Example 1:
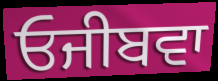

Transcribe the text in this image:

ਓਜੀਬਵਾ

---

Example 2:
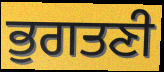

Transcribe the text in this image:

ਭੁਗਤਣੀ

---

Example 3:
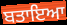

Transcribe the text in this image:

ਬਤਾਇਆ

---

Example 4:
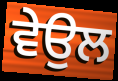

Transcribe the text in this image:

ਵੇਉਲ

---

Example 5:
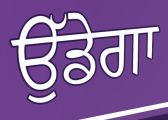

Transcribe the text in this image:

ਉੱਡੇਗਾ